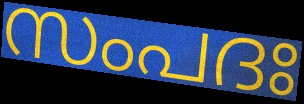
സംപദഃ